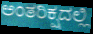
ಅಂತರಿಕ್ಷದಲ್ಲಿ